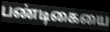
பண்டிகையை